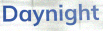
Daynight